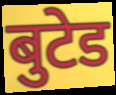
बुटेड